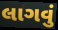
લાગવું